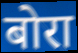
बोरा